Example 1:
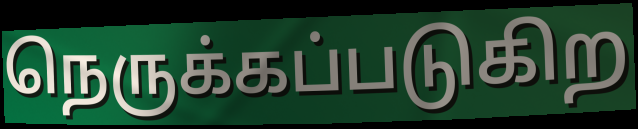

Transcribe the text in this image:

நெருக்கப்படுகிற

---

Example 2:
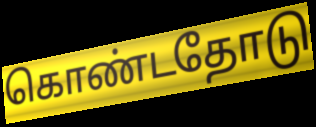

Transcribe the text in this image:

கொண்டதோடு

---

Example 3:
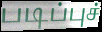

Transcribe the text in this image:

படிப்புச்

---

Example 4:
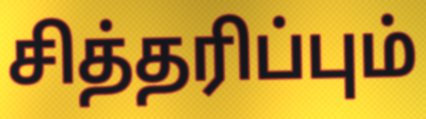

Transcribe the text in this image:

சித்தரிப்பும்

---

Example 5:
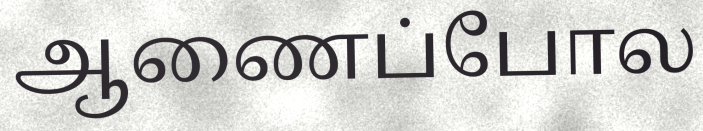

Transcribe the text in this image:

ஆணைப்போல